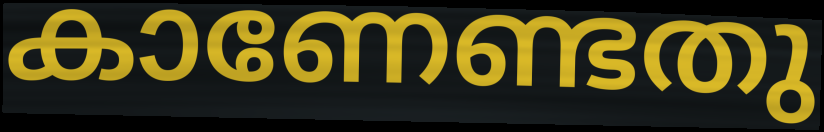
കാണേണ്ടതു